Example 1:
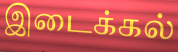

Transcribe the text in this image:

இடைக்கல்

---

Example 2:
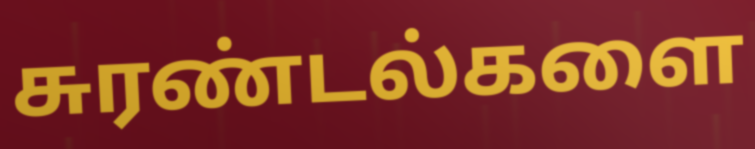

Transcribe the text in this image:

சுரண்டல்களை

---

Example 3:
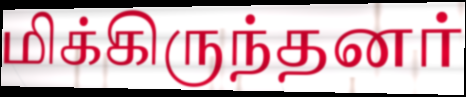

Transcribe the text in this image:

மிக்கிருந்தனர்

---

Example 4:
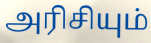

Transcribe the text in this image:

அரிசியும்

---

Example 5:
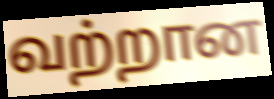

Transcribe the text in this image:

வற்றான